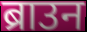
ब्राउन